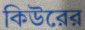
কিউরের